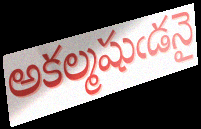
అకల్మషుఁడనై